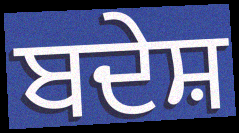
ਬਦੇਸ਼